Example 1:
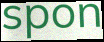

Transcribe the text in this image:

spon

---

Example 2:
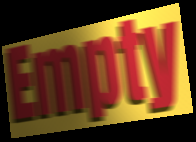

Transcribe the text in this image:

Empty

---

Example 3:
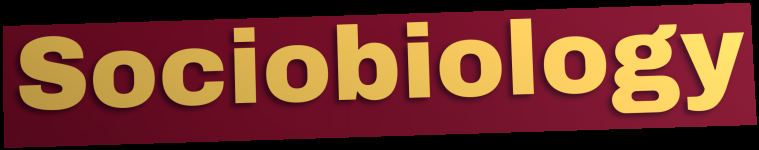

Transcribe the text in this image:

Sociobiology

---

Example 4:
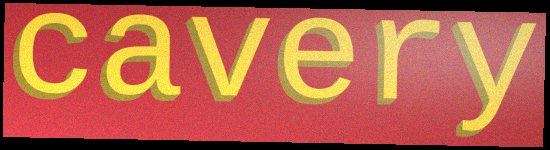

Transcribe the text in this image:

cavery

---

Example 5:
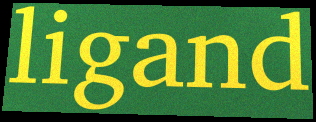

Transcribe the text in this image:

ligand